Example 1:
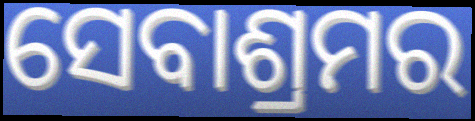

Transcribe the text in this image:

ସେବାଶ୍ରମର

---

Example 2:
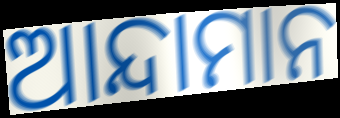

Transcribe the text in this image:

ଆନ୍ଦାମାନ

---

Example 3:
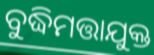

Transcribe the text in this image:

ବୁଦ୍ଧିମତ୍ତାଯୁକ୍ତ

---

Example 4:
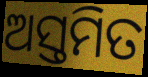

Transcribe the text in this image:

ଅସ୍ତମିତ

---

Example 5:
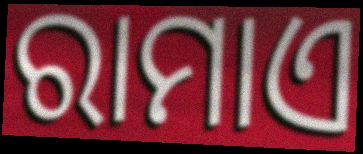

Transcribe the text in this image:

ରାମାଏ